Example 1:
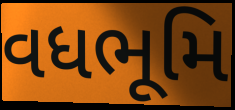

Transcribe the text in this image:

વધભૂમિ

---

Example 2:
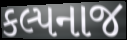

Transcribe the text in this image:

કલ્પનાજ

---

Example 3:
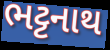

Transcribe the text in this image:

ભટ્ટનાથ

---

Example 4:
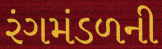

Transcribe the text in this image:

રંગમંડળની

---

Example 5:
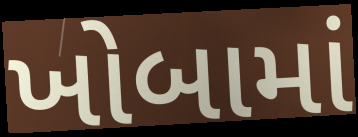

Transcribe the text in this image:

ખોબામાં